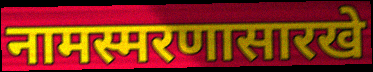
नामस्मरणासारखे